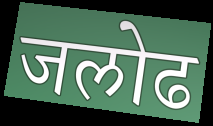
जलोढ